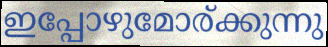
ഇപ്പോഴുമോര്ക്കുന്നു